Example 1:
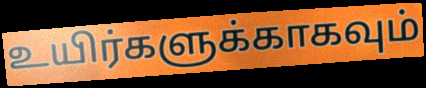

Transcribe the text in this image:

உயிர்களுக்காகவும்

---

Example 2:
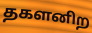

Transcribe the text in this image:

தகளனிற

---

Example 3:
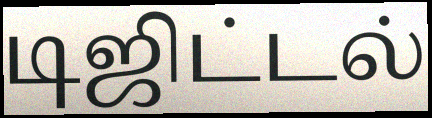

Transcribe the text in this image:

டிஜிட்டல்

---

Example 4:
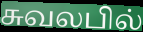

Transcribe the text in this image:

சுவலபில்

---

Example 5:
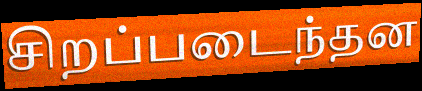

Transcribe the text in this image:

சிறப்படைந்தன